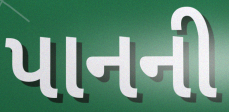
પાનની